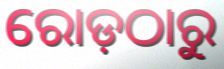
ରୋଡ଼ଠାରୁ